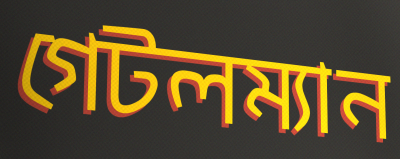
গেটলম্যান